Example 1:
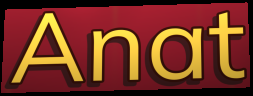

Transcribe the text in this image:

Anat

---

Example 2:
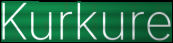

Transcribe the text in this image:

Kurkure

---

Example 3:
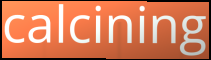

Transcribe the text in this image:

calcining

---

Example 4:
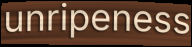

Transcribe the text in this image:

unripeness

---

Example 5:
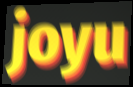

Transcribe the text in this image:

joyu